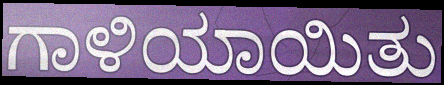
ಗಾಳಿಯಾಯಿತು